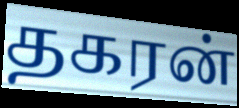
தகரன்